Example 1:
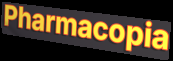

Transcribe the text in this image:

Pharmacopia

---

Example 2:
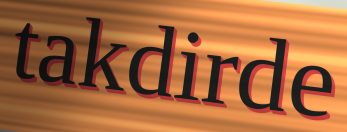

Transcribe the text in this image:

takdirde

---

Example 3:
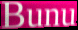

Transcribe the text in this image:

Bunu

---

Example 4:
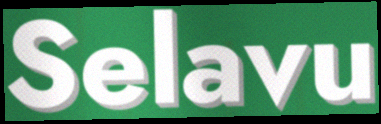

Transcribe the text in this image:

Selavu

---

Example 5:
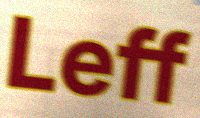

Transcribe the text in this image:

Leff